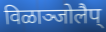
विळाञ्जोलैप्